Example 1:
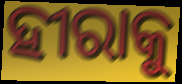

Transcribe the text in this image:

ହୀରାକୁ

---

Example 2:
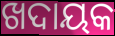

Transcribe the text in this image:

ଖଦାୟକ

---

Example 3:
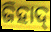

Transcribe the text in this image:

ଜିହାଦ୍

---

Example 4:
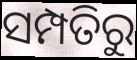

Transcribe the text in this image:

ସମ୍ପତିରୁ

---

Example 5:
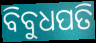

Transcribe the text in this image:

ବିବୁଧପତି